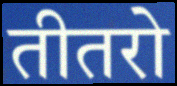
तीतरो